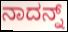
ನಾದನ್ನ್